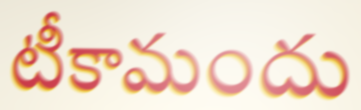
టీకామందు